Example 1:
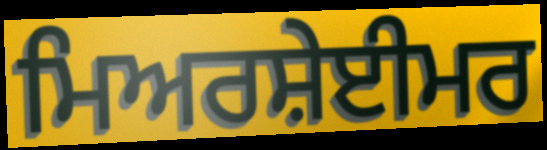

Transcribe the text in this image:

ਮਿਅਰਸ਼ੇਈਮਰ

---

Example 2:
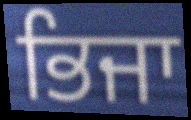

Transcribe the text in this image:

ਭਿਜਾ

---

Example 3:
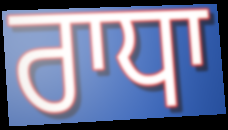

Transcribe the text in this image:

ਰਾਧਾ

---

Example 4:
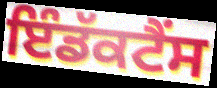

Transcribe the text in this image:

ਇੰਡੱਕਟੈਂਸ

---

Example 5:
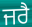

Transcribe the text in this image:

ਜਰੈ